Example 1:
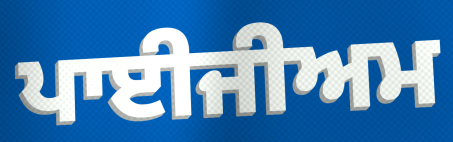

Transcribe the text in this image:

ਪਾਈਜੀਅਮ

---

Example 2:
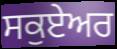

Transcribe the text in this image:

ਸਕੁਏਅਰ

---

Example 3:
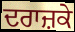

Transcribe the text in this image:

ਦਰਾਜ਼ਕੇ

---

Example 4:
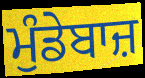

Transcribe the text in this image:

ਮੁੰਡੇਬਾਜ਼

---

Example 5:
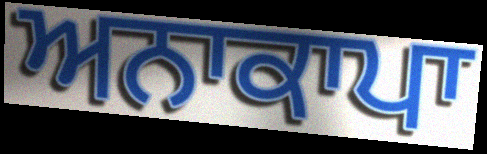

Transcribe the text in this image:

ਅਨਾਕਾਪਾ